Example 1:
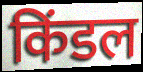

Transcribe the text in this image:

किंडल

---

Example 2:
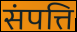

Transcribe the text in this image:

संपत्ति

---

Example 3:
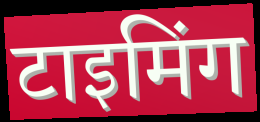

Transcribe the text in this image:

टाइमिंग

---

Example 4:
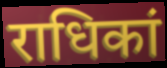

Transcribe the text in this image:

राधिकां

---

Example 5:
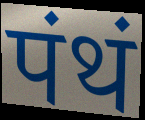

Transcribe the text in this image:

पंथं